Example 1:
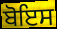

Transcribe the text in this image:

ਬੋਇਸ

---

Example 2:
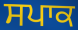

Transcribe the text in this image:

ਸਪਾਕ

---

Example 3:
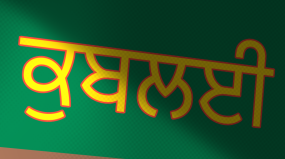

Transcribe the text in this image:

ਕੁਬਲਈ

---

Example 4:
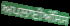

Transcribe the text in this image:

ਅਪਲਾਈਅੰਸਿਸ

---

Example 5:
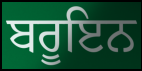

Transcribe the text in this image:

ਬਰੂਇਨ